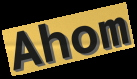
Ahom